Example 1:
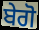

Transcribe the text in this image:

ਬੇਗੋ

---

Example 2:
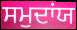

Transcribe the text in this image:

ਸਮੁਦਾਂਯ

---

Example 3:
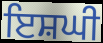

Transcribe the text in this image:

ਇਸ਼ਘੀ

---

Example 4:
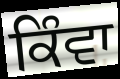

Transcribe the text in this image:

ਕਿੰਵਾ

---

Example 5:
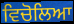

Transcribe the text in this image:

ਵਿਚੋਲਿਆ